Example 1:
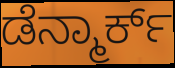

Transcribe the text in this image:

ಡೆನ್ಮಾರ್ಕ್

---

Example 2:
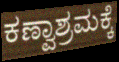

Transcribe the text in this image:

ಕಣ್ವಾಶ್ರಮಕ್ಕೆ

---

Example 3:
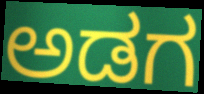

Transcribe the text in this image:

ಅಡಗ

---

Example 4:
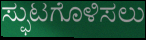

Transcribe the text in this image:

ಸ್ಫುಟಗೊಳಿಸಲು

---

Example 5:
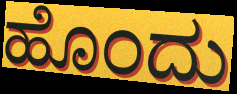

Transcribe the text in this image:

ಹೊಂದು